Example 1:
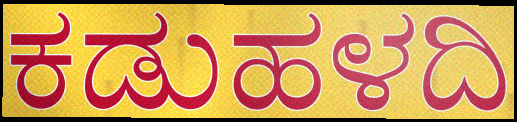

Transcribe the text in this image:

ಕಡುಹಳದಿ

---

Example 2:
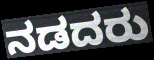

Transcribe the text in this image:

ನಡದರು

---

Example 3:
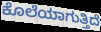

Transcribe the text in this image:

ಕೊಲೆಯಾಗುತ್ತಿದೆ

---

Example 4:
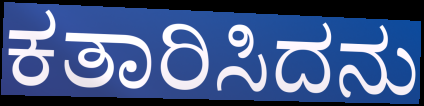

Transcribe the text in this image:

ಕತಾರಿಸಿದನು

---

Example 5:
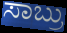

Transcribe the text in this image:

ಸಾಬ್ರು